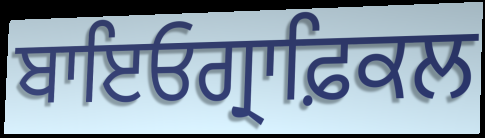
ਬਾਇਓਗ੍ਰਾਫ਼ਿਕਲ